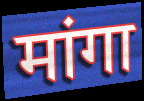
मांगा